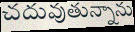
చదువుతున్నాను